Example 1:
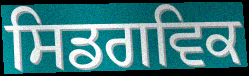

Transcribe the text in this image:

ਸਿਡਗਵਿਕ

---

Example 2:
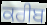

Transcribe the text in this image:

ਕਰੀਬ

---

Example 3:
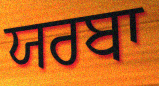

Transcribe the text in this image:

ਯਰਬਾ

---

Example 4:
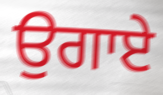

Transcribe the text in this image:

ਉਗਾਏ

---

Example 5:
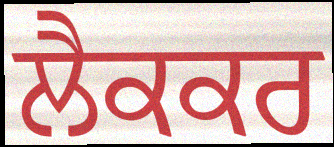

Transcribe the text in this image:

ਲੈਕਕਰ